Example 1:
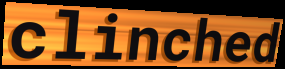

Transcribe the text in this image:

clinched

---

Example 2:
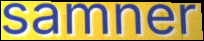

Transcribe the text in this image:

samner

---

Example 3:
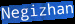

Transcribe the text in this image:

Negizhan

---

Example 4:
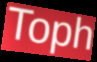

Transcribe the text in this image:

Toph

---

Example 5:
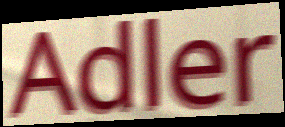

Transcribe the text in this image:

Adler